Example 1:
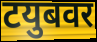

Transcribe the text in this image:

टयुबवर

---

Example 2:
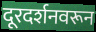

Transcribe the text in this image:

दूरदर्शनवरून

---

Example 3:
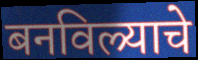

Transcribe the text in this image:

बनविल्याचे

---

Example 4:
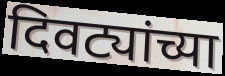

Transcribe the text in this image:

दिवट्यांच्या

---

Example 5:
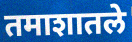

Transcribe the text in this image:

तमाशातले